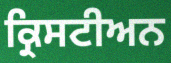
ਕ੍ਰਿਸਟੀਅਨ